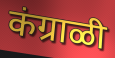
कंग्राळी